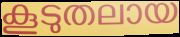
കൂടുതലായ